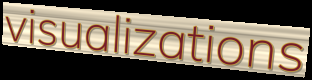
visualizations